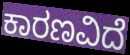
ಕಾರಣವಿದೆ